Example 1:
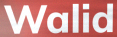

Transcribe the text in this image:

Walid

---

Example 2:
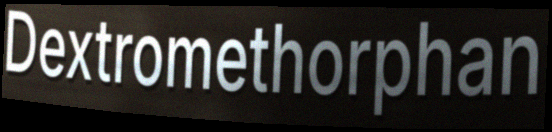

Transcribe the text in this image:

Dextromethorphan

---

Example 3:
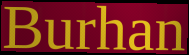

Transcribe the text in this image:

Burhan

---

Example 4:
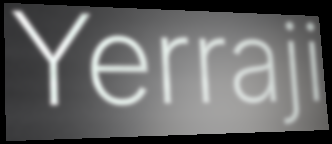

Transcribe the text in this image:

Yerraji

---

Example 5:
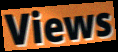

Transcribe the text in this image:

Views